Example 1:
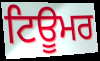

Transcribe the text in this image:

ਟਿਊਮਰ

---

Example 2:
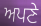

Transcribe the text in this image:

ਅਪਣੇ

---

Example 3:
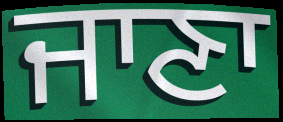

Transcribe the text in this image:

ਜਾਣਾ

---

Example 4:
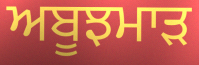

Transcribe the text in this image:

ਅਬੂਝਮਾੜ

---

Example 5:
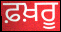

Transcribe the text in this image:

ਫ਼ਖ਼ਰੂ